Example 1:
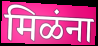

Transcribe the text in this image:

मिळंना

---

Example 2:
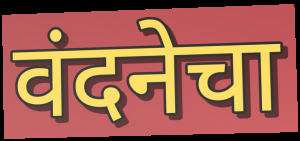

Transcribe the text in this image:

वंदनेचा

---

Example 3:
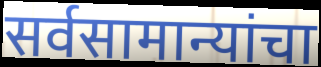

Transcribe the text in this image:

सर्वसामान्यांचा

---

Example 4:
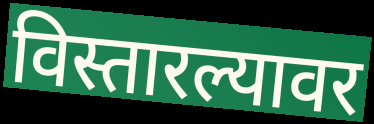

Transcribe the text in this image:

विस्तारल्यावर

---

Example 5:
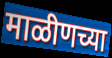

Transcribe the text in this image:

माळीणच्या